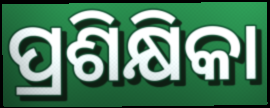
ପ୍ରଶିକ୍ଷିକା